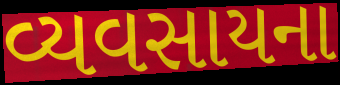
વ્યવસાયના